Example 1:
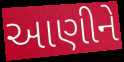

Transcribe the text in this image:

આણીને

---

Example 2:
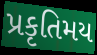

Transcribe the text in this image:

પ્રકૃતિમય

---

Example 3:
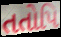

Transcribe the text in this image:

તતોપિ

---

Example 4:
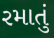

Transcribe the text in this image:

રમાતું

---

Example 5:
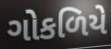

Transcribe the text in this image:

ગોકળિયે